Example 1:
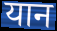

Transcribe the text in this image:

यान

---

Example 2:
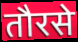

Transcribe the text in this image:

तौरसे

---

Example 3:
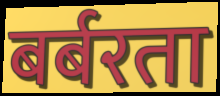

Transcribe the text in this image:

बर्बरता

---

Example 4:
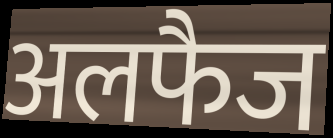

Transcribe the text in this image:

अलफैज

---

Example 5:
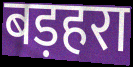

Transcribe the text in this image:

बड़हरा